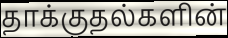
தாக்குதல்களின்